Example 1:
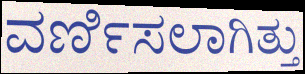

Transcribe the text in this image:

ವರ್ಣಿಸಲಾಗಿತ್ತು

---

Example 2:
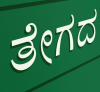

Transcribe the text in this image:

ತೇಗದ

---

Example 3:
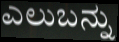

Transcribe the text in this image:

ಎಲುಬನ್ನು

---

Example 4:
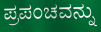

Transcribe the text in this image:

ಪ್ರಪಂಚವನ್ನು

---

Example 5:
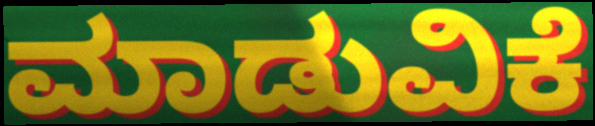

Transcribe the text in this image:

ಮಾಡುವಿಕೆ